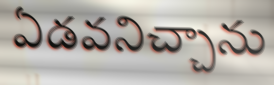
ఏడవనిచ్చాను